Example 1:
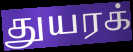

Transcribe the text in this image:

துயரக்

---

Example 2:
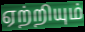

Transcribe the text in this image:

ஏற்றியும்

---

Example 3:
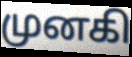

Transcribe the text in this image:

முனகி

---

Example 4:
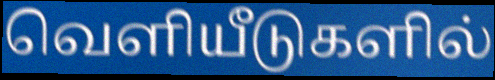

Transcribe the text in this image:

வெளியீடுகளில்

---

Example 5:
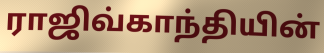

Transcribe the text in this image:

ராஜிவ்காந்தியின்